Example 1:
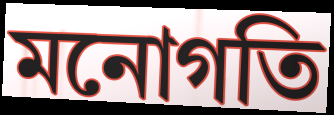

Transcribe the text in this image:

মনোগতি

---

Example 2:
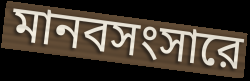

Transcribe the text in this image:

মানবসংসারে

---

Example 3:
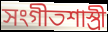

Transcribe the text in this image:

সংগীতশাস্ত্রী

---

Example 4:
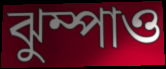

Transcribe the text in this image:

ঝুম্পাও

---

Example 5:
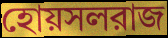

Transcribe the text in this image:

হোয়সলরাজ